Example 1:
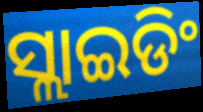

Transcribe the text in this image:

ସ୍ଲାଇଡିଂ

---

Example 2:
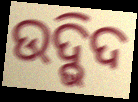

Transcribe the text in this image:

ଉଦ୍ଭିଦ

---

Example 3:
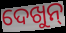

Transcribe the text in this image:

ଦେଖୁନ୍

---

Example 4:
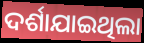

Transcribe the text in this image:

ଦର୍ଶାଯାଇଥିଲା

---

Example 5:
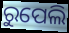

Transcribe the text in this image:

ରୁପେଲି